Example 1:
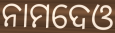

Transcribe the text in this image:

ନାମଦେଓ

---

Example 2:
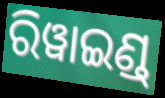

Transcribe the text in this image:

ରିୱାଇଣ୍ଡ୍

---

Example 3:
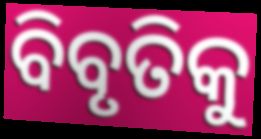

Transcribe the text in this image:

ବିବୃତିକୁ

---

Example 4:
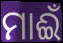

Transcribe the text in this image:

ମାଈଁ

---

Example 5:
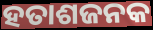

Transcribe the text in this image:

ହତାଶଜନକ